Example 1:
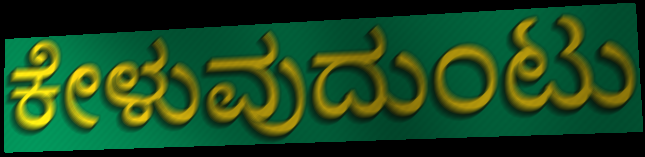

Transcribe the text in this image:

ಕೇಳುವುದುಂಟು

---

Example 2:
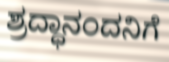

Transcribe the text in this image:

ಶ್ರದ್ಧಾನಂದನಿಗೆ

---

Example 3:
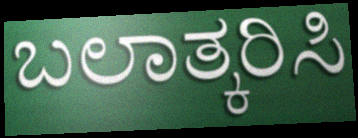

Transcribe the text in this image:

ಬಲಾತ್ಕರಿಸಿ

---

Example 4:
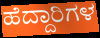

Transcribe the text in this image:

ಹೆದ್ದಾರಿಗಳ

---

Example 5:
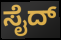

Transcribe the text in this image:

ಸೈದ್